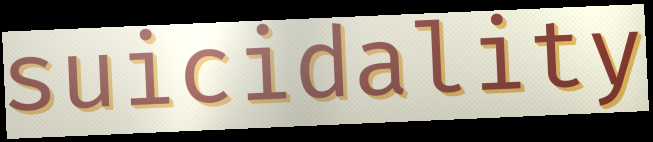
suicidality